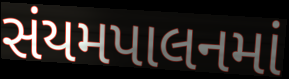
સંયમપાલનમાં